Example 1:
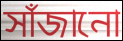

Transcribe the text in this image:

সাঁজানো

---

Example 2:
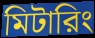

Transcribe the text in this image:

মিটারিং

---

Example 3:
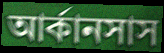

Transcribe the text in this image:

আর্কানসাস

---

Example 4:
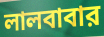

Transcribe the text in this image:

লালবাবার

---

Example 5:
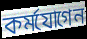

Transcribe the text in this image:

কর্মযোগেন